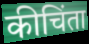
कीचिंता